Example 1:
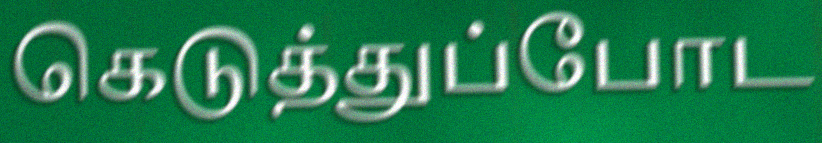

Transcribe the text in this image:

கெடுத்துப்போட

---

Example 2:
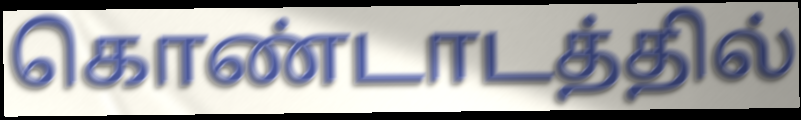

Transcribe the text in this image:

கொண்டாடத்தில்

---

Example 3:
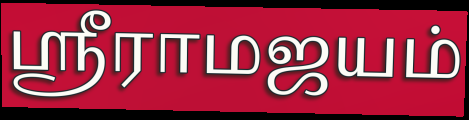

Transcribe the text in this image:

ஸ்ரீராமஜயம்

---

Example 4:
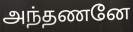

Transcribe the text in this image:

அந்தணனே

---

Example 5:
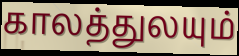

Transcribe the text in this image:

காலத்துலயும்